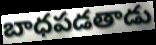
బాధపడతాడు